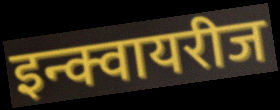
इन्क्वायरीज